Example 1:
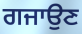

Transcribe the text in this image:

ਗਜਾਉਣ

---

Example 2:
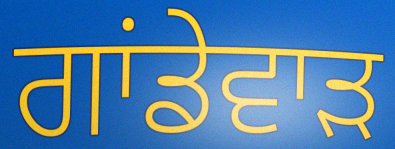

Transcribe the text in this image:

ਗਾਂਡੇਵਾੜ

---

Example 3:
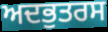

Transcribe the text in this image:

ਅਦਭੁਤਰਸ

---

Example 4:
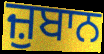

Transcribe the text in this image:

ਜ਼ੁਬਾਨ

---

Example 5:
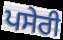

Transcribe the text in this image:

ਪਸੇਰੀ